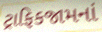
ટ્રાફિકજામનાં